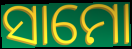
ସାମୋ